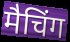
मैचिंग